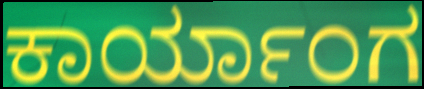
ಕಾರ್ಯಾಂಗ